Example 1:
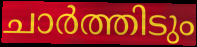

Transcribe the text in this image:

ചാർത്തിടും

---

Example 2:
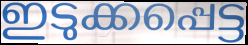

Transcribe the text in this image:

ഇടുക്കപ്പെട്ട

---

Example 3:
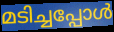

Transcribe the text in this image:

മടിച്ചപ്പോൾ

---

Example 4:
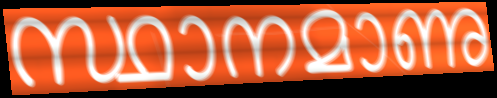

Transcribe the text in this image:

സ്ഥാനമാണു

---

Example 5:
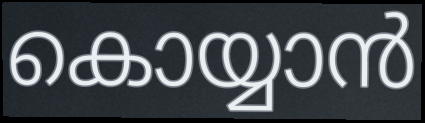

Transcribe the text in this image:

കൊയ്യാൻ